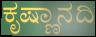
ಕೃಷ್ಣಾನದಿ